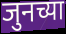
जुनच्या